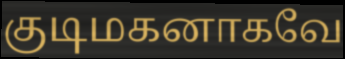
குடிமகனாகவே